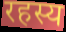
रहस्य